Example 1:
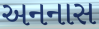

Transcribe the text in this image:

અનનાસ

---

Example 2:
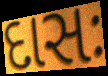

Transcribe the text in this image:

દાસઃ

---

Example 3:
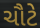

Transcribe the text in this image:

ચૌટે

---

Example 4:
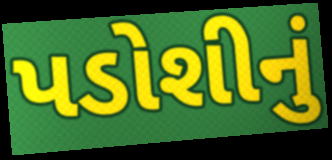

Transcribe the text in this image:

પડોશીનું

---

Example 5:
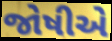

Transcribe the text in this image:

જોષીએ